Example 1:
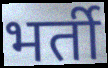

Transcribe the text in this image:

भर्ती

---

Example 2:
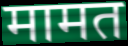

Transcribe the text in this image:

मामत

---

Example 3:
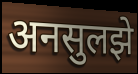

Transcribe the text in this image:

अनसुलझे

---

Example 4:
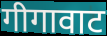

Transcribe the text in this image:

गीगावाट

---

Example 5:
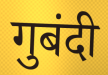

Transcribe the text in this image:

गुबंदी